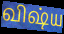
விஷ்ய